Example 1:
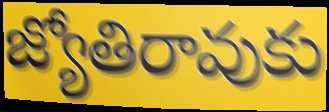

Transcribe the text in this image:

జ్యోతిరావుకు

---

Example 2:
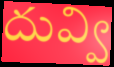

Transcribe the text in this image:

దువ్వి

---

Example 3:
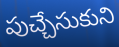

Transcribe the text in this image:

పుచ్చేసుకుని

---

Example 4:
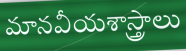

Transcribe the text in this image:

మానవీయశాస్త్రాలు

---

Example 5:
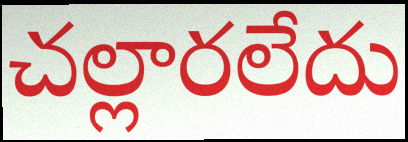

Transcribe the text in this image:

చల్లారలేదు